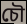
চৌ